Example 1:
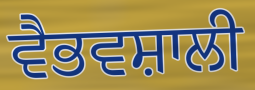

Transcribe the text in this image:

ਵੈਭਵਸ਼ਾਲੀ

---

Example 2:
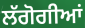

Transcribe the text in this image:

ਲੱਗੋਗੀਆਂ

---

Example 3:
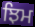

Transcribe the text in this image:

ਝਿਮ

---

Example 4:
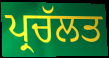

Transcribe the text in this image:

ਪ੍ਰਚੱਲਤ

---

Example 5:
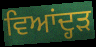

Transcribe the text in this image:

ਵਿਆਂਦ੍ਹੜ